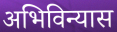
अभिविन्यास